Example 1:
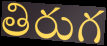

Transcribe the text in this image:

తిరుగ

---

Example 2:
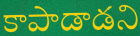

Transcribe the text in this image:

కాపాడాడని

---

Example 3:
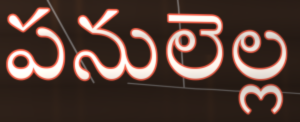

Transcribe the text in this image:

పనులెల్ల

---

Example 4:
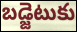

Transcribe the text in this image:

బడ్జెటుకు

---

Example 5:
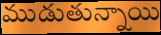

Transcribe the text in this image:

ముడుతున్నాయి